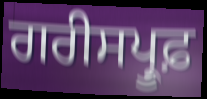
ਗਰੀਸਪ੍ਰੂਫ਼